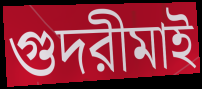
গুদরীমাই